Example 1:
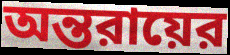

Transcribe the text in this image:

অন্তরায়ের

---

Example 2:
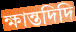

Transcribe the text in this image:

ক্ষান্তদিদি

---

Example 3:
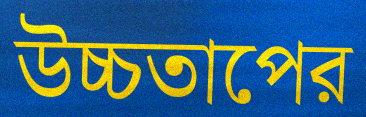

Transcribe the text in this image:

উচ্চতাপের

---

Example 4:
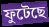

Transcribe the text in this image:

ফুটেছে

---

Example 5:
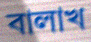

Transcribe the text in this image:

বালাখ